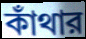
কাঁথার